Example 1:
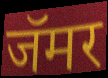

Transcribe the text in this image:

जॅमर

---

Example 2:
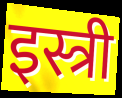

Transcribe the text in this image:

इस्त्री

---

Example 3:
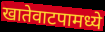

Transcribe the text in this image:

खातेवाटपामध्ये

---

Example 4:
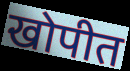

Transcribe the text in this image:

खोपीत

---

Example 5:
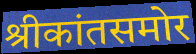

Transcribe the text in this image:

श्रीकांतसमोर